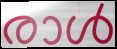
രാൾ